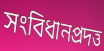
সংবিধানপ্রদত্ত